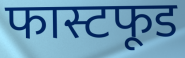
फास्‍टफूड